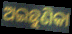
ଅଇଛୁଣିକା